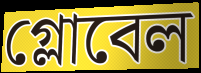
গ্লোবেল